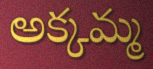
అక్కమ్మ